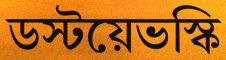
ডস্টয়েভস্কি